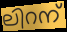
ലിറന്